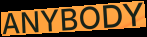
ANYBODY